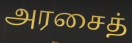
அரசைத்